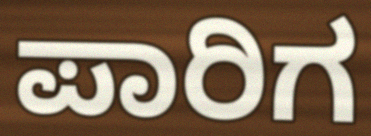
ಪಾರಿಗ